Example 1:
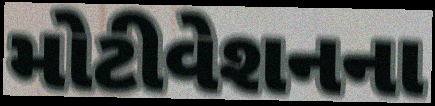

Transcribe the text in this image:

મોટીવેશનના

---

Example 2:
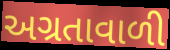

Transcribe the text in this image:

અગ્રતાવાળી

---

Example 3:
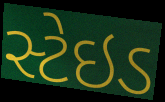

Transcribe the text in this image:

સ્ટેઇડ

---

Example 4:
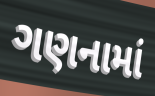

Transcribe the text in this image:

ગણનામાં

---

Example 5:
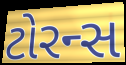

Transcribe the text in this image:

ટોરન્સ